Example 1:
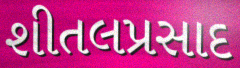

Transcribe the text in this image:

શીતલપ્રસાદ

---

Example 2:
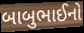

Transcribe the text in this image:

બાબુભાઈનો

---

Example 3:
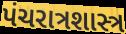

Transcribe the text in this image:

પંચરાત્રશાસ્ત્ર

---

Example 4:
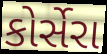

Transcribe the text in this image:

કોર્સેરા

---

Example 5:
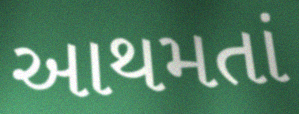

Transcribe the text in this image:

આથમતાં